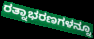
ರತ್ನಾಭರಣಗಳನ್ನೂ